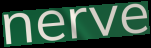
nerve